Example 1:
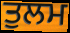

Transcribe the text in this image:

ਤੁਲਮ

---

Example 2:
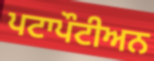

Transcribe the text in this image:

ਪਟਾਪੌਟੀਅਨ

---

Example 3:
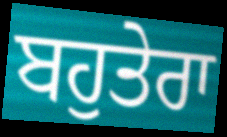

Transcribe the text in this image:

ਬਹੁਤੇਰਾ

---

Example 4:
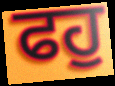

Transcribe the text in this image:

ਫਹੁ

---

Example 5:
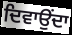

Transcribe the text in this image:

ਦਿਵਾਉਂਦਾ